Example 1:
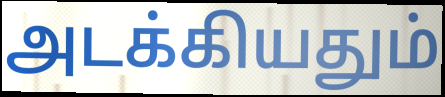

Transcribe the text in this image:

அடக்கியதும்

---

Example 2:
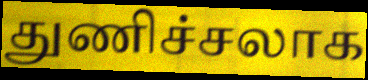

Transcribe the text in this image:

துணிச்சலாக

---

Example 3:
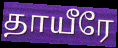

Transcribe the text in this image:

தாயீரே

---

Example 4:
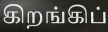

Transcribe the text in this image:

கிறங்கிப்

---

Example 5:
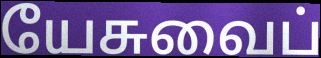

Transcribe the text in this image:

யேசுவைப்